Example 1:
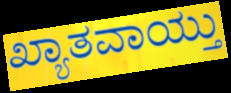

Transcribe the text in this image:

ಖ್ಯಾತವಾಯ್ತು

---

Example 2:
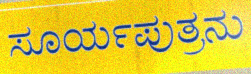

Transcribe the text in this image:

ಸೂರ್ಯಪುತ್ರನು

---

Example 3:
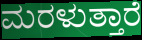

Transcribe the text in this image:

ಮರಳುತ್ತಾರೆ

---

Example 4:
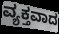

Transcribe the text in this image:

ವ್ಯಕ್ತವಾದ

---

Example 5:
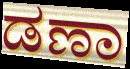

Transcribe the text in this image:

ಡಣಾ